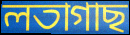
লতাগাছ